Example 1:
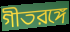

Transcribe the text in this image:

গীতরঙ্গে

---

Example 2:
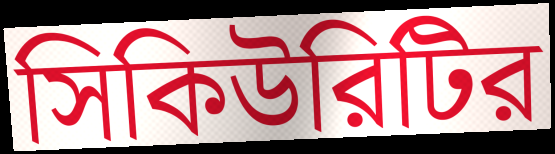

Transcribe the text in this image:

সিকিউরিটির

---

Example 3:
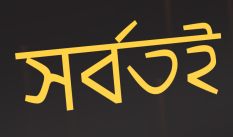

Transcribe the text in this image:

সর্বতই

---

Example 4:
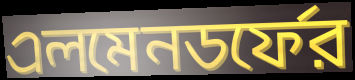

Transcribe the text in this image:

এলমেনডর্ফের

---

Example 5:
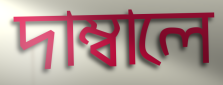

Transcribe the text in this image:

দাম্বালে